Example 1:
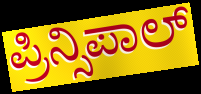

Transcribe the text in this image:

ಪ್ರಿನ್ಸಿಪಾಲ್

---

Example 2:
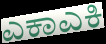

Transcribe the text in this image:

ಎಕಾಎಕಿ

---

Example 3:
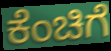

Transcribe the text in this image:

ಕೆಂಚಿಗೆ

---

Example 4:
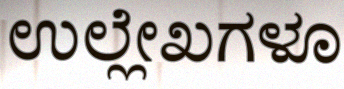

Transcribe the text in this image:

ಉಲ್ಲೇಖಗಳೂ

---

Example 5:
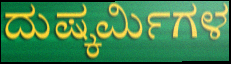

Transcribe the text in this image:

ದುಷ್ಕರ್ಮಿಗಳ